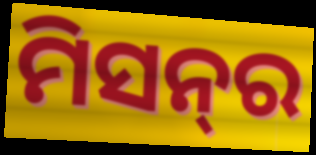
ମିସନ୍‌ର